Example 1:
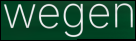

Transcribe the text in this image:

wegen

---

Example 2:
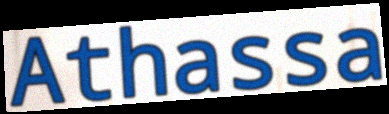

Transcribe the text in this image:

Athassa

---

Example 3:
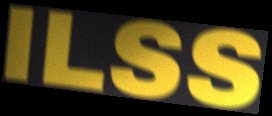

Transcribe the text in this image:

ILSS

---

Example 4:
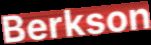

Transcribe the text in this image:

Berkson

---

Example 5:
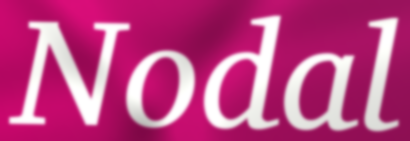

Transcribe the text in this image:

Nodal